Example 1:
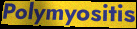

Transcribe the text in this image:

Polymyositis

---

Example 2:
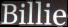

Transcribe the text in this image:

Billie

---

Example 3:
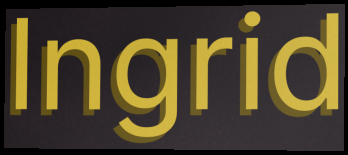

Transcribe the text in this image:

Ingrid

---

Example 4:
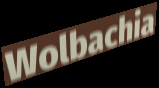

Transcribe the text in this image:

Wolbachia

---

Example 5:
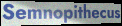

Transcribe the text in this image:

Semnopithecus